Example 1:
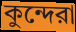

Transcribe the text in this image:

কুন্দেরা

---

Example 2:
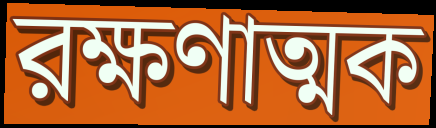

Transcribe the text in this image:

রক্ষণাত্মক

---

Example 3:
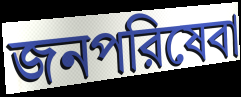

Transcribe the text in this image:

জনপরিষেবা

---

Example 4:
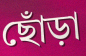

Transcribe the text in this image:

ছোঁড়া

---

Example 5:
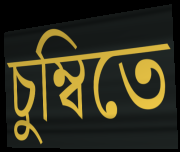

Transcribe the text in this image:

চুম্বিতে